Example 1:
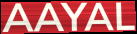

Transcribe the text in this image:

AAYAL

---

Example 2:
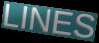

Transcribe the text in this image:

LINES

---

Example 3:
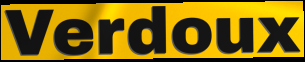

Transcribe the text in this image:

Verdoux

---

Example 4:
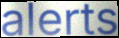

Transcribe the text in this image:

alerts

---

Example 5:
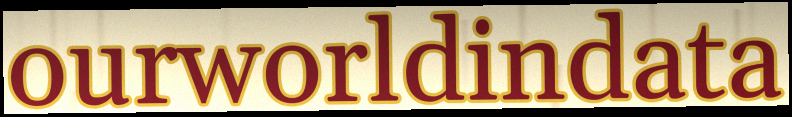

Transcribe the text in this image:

ourworldindata